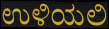
ಉಳಿಯಲಿ